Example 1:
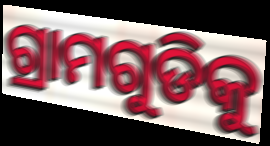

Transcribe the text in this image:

ଗ୍ରାମଗୁଡିକୁ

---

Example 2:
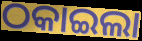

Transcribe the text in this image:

ଠକାଇଲା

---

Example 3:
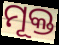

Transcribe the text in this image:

ମୂକ୍ତ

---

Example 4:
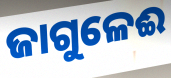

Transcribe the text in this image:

ଜାଗୁଳେଈ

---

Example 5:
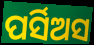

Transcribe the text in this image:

ପର୍ସିଅସ